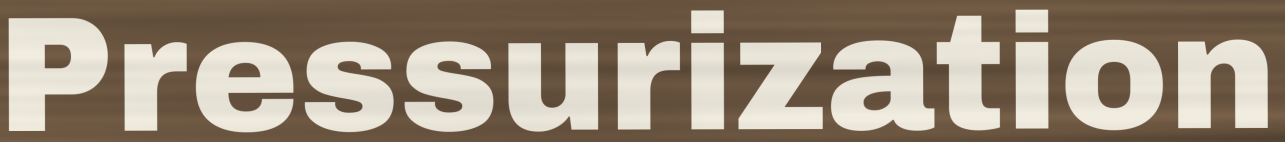
Pressurization